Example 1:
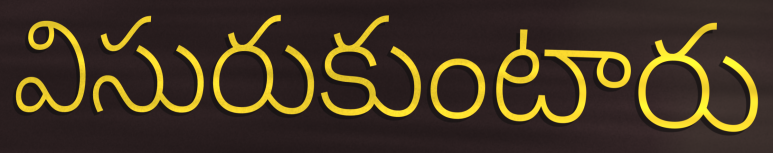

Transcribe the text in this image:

విసురుకుంటారు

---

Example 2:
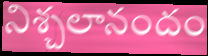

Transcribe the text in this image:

నిశ్చలానందం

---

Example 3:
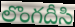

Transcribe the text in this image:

లొంగదీసి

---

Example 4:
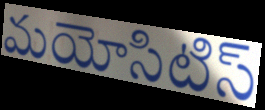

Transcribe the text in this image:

మయోసిటిస్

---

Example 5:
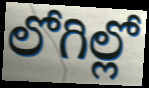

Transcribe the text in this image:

లోగిల్లో